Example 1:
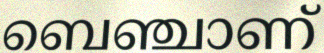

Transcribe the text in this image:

ബെഞ്ചാണ്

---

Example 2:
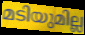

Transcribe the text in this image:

മടിയുമില്ല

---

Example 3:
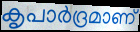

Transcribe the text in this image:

കൃപാർദ്രമാണ്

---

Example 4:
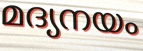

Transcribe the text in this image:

മദ്യനയം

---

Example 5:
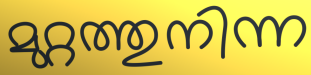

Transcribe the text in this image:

മുറ്റത്തുനിന്ന